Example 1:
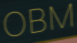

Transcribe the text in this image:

OBM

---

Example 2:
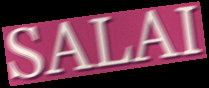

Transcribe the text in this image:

SALAI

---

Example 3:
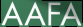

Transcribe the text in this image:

AAFA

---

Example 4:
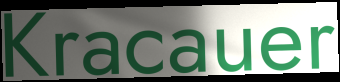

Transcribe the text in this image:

Kracauer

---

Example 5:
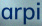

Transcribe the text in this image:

arpi